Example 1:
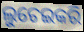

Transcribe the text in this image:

ଲୁଚେଇକରି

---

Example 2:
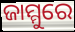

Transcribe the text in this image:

ଜାମ୍ମୁରେ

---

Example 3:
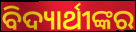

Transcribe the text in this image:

ବିଦ୍ୟାର୍ଥୀଙ୍କର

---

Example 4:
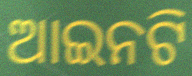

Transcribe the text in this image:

ଆଇନଟି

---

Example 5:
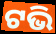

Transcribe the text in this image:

ଟଭି